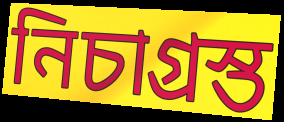
নিচাগ্ৰস্ত